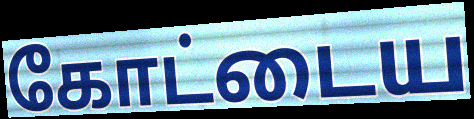
கோட்டைய